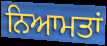
ਨਿਆਮਤਾਂ